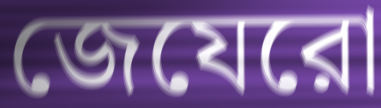
জেযেরো